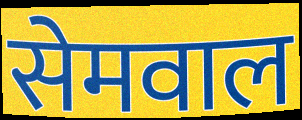
सेमवाल